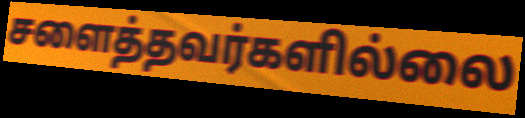
சளைத்தவர்களில்லை